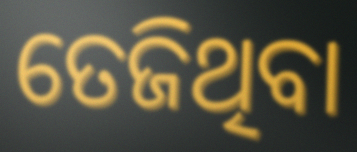
ତେଜିଥିବା